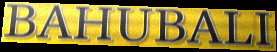
BAHUBALI